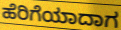
ಹೆರಿಗೆಯಾದಾಗ